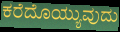
ಕರೆದೊಯ್ಯುವುದು